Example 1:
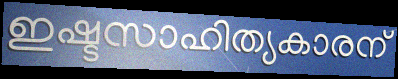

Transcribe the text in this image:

ഇഷ്ടസാഹിത്യകാരന്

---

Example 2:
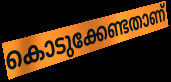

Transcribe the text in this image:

കൊടുക്കേണ്ടതാണ്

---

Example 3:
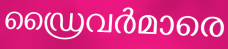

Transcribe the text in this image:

ഡ്രൈവർമാരെ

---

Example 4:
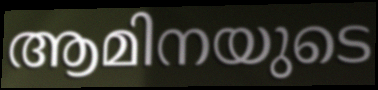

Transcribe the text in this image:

ആമിനയുടെ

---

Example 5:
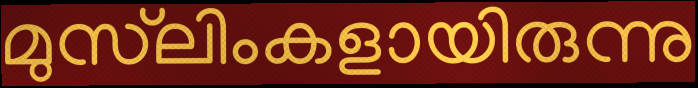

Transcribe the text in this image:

മുസ്‌ലിംകളായിരുന്നു